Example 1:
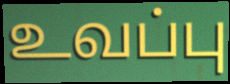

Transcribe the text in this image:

உவப்பு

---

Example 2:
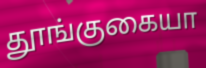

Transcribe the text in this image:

தூங்குகையா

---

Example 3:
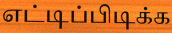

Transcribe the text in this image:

எட்டிப்பிடிக்க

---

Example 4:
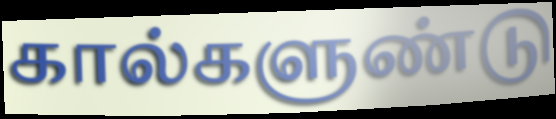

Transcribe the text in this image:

கால்களுண்டு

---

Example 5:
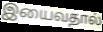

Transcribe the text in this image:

இயைவதால்